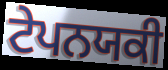
ਟੇਪਨਯਕੀ